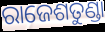
ରାଜେଶତୁଣ୍ଡା